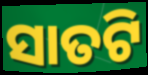
ସାତଟି